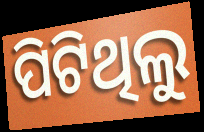
ପିଟିଥିଲୁ